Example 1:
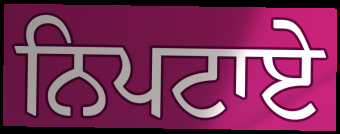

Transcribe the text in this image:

ਨਿਪਟਾਏ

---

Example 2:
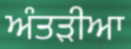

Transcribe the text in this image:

ਅੰਤੜੀਆ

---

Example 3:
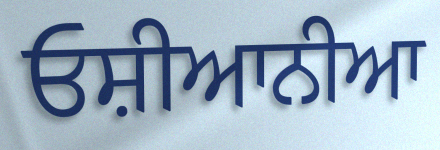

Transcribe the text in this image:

ਓਸ਼ੀਆਨੀਆ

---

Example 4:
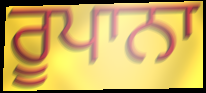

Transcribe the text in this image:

ਰੂਪਾਨਾ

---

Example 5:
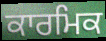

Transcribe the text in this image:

ਕਾਰਮਿਕ